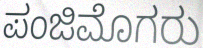
ಪಂಜಿಮೊಗರು